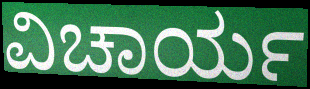
ವಿಚಾರ್ಯ